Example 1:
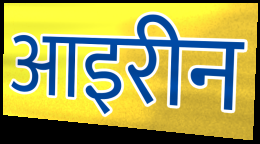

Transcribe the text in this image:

आइरीन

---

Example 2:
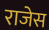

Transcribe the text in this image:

राजेस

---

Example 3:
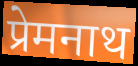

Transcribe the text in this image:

प्रेमनाथ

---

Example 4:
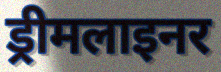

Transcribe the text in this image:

ड्रीमलाइनर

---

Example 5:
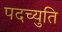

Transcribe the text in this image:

पदच्युति